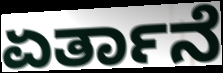
ಏರ್ತಾನೆ